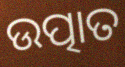
ଉତ୍ପାତ